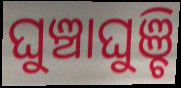
ଘୁଞ୍ଚାଘୁଞ୍ଚି